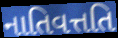
નાતિવત્તતિ